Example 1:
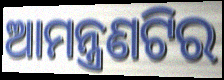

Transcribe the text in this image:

ଆମନ୍ତ୍ରଣଟିର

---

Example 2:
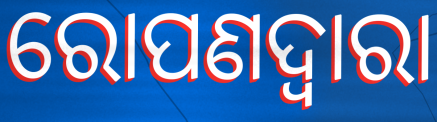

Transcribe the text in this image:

ରୋପଣଦ୍ୱାରା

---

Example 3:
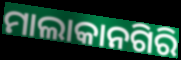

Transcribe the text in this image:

ମାଲାକାନଗିରି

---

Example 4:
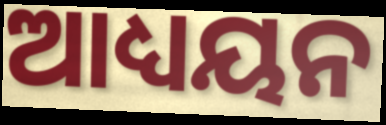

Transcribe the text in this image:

ଆଧ୍ୟୟନ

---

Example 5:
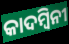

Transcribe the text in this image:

କାଦମ୍ୱିନୀ